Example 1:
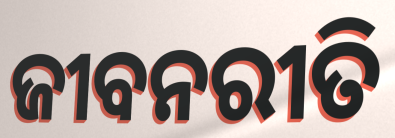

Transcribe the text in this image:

ଜୀବନରୀତି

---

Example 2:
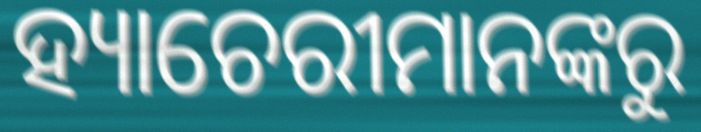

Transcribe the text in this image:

ହ୍ୟାଚେରୀମାନଙ୍କରୁ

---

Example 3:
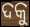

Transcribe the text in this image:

ଦକୁ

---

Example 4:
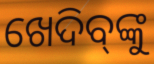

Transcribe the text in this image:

ଖେଦିବ୍‌ଙ୍କୁ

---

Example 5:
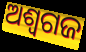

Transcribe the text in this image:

ଅଶ୍ୱଗଜ